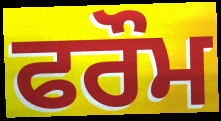
ਫਰੌਮ